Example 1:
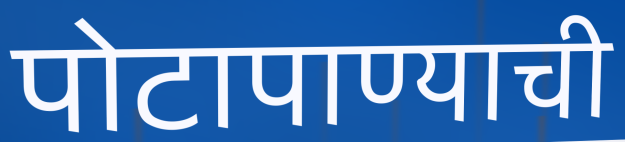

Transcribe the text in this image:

पोटापाण्याची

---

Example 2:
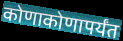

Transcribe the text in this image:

कोणाकोणापर्यंत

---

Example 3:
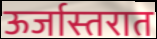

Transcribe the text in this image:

ऊर्जास्तरात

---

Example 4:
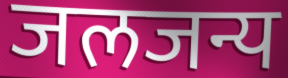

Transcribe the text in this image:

जलजन्य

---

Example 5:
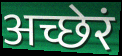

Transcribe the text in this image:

अच्छेरं